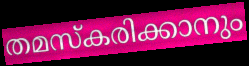
തമസ്കരിക്കാനും